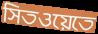
সিতওয়েতে